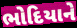
ભોદિયાને